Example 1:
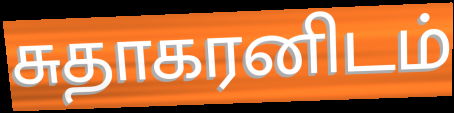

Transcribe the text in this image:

சுதாகரனிடம்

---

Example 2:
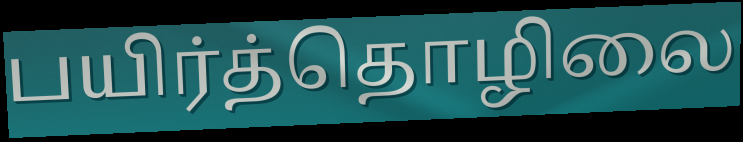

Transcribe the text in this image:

பயிர்த்தொழிலை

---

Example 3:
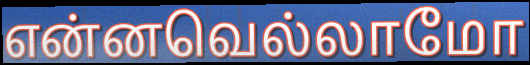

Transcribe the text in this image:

என்னவெல்லாமோ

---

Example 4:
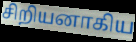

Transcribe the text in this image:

சிறியனாகிய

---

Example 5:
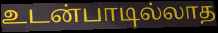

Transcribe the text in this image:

உடன்பாடில்லாத